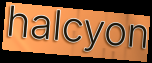
halcyon